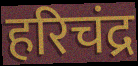
हरिचंद्र